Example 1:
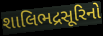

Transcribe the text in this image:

શાલિભદ્રસૂરિનો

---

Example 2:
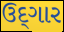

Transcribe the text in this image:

ઉદ્‌ગાર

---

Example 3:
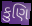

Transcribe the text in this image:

કુણિ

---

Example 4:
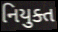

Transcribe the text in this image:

નિયુક્ત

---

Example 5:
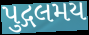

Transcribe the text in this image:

પુદ્ગલમય